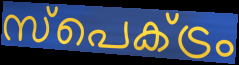
സ്പെക്ട്രം